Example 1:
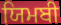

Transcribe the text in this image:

ਯਿਮਬੀ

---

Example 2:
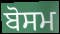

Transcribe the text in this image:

ਬੋਸਮ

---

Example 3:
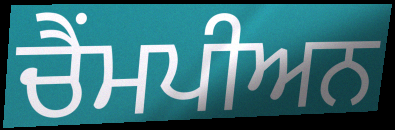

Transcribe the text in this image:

ਚੈਂਮਪੀਅਨ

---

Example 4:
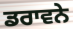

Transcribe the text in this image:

ਡਰਾਵਨੇ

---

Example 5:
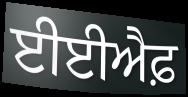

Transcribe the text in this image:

ਈਈਐਫ਼